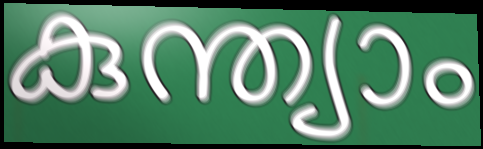
കുന്ത്യാം